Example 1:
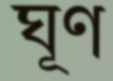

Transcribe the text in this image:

ঘূণ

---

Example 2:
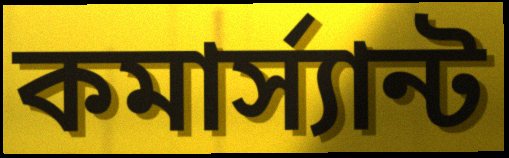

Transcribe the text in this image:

কমার্স্যান্ট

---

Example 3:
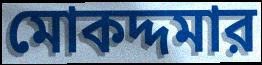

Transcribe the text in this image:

মোকদ্দমার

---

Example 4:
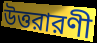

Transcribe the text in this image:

উত্তরারণী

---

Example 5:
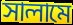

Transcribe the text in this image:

সালামে